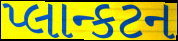
પ્લાન્કટન